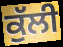
ਕੁੱਲੀ